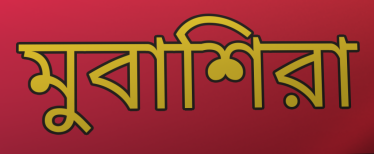
মুবাশিরা